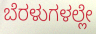
ಬೆರಳುಗಳಲ್ಲೇ